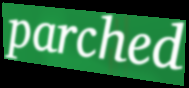
parched